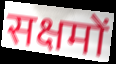
सक्षमों